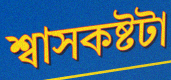
শ্বাসকষ্টটা